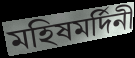
মহিষমর্দিনী